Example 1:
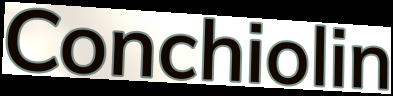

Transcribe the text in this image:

Conchiolin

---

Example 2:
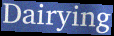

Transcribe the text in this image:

Dairying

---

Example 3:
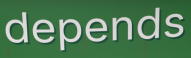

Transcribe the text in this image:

depends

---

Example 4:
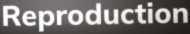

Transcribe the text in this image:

Reproduction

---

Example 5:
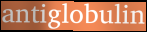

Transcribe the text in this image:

antiglobulin